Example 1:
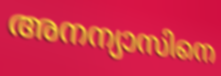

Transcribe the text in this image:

അനന്യാസിനെ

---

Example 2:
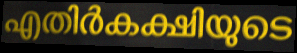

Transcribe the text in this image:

എതിർകക്ഷിയുടെ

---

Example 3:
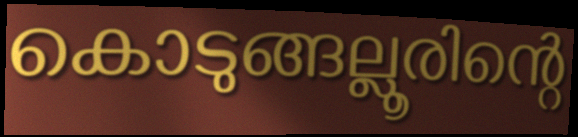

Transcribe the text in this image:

കൊടുങ്ങല്ലൂരിന്റെ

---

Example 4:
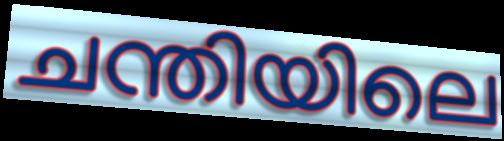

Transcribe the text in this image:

ചന്തിയിലെ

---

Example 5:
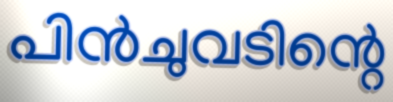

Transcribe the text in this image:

പിൻചുവടിന്റെ